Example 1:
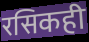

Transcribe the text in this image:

रसिकही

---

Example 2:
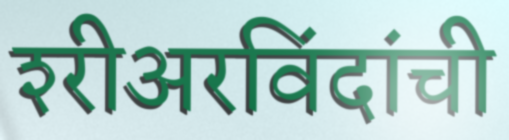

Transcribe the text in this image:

श्रीअरविंदांची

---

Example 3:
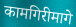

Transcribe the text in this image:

कामगिरीमागे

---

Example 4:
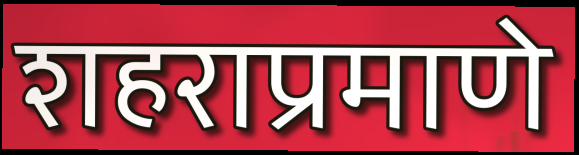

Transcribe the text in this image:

शहराप्रमाणे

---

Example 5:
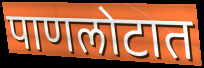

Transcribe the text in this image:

पाणलोटात